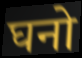
घनो